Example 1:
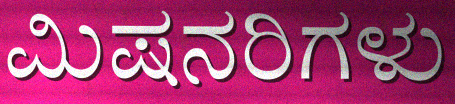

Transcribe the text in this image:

ಮಿಷನರಿಗಳು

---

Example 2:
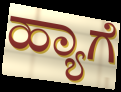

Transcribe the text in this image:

ಹ್ಯಾಗೆ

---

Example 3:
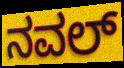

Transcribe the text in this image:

ನವಲ್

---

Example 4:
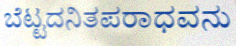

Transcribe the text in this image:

ಬೆಟ್ಟದನಿತಪರಾಧವನು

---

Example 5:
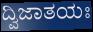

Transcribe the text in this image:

ದ್ವಿಜಾತಯಃ